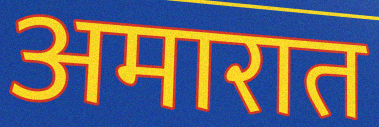
अमारात